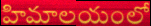
హిమాలయంలో